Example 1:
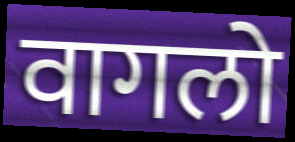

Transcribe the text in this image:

वागलो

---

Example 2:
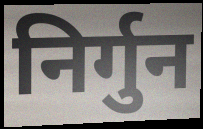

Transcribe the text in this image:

निर्गुन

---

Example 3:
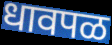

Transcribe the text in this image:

धावपळ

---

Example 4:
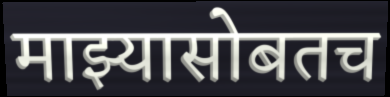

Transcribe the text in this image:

माझ्यासोबतच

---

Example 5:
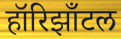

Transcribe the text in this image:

हॉरिझाँटल